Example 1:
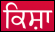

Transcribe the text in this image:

ਕਿਸ਼ਾ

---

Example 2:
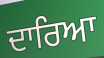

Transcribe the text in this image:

ਦਾਰਿਆ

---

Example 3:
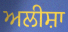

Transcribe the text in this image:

ਅਲੀਸ਼ਾ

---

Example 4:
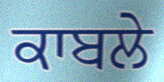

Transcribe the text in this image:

ਕਾਬਲੇ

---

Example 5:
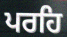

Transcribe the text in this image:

ਪਰਹਿ